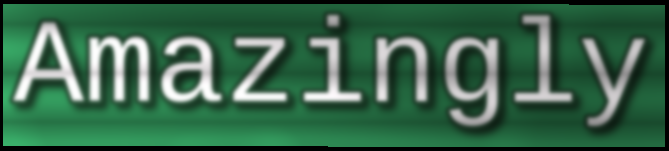
Amazingly